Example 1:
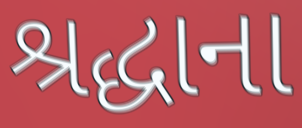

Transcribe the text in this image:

શ્રદ્ધાના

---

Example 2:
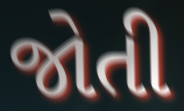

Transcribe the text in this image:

જોતી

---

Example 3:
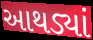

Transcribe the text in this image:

આથડ્યાં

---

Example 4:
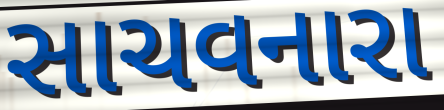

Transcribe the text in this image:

સાચવનારા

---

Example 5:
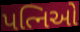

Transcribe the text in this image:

પત્નિઓ